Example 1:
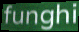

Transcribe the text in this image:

funghi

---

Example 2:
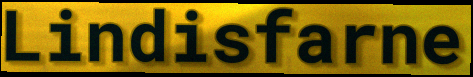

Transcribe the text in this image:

Lindisfarne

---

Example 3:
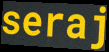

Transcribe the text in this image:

seraj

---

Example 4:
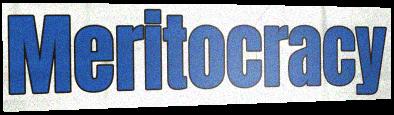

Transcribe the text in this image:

Meritocracy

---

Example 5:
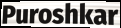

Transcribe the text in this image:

Puroshkar